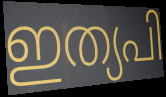
ഇത്യപി